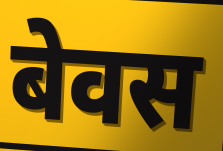
बेवस